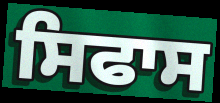
ਸਿਫਾਸ